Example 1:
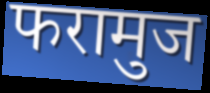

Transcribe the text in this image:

फरामुज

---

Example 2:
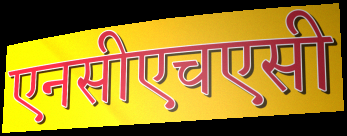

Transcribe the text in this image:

एनसीएचएसी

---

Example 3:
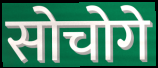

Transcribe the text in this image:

सोचोगे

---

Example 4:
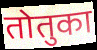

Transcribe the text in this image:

तोतुका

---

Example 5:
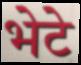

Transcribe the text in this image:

भेटे